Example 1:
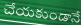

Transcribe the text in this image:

చేయకుండానే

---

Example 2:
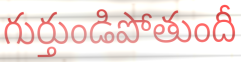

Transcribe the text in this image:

గుర్తుండిపోతుందీ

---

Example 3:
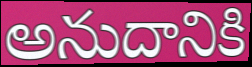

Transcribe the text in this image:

అనుదానికి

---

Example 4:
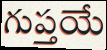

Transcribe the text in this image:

గుప్తయే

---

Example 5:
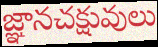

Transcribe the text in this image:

జ్ఞానచక్షువులు